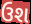
ઉશ